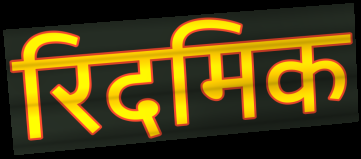
रिदमिक